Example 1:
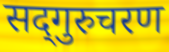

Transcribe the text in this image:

सद्‍गुरुचरण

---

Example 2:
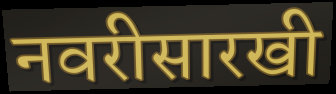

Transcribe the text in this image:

नवरीसारखी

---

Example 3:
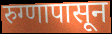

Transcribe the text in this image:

रुग्णापासून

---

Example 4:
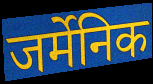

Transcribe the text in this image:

जर्मेनिक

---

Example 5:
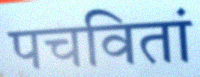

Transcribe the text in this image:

पचवितां